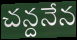
చన్దనేన